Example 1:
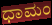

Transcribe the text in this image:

ಧಾಮಂ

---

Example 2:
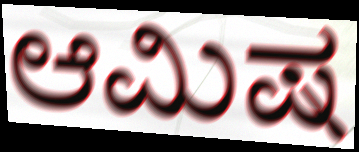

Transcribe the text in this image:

ಆಮಿಷ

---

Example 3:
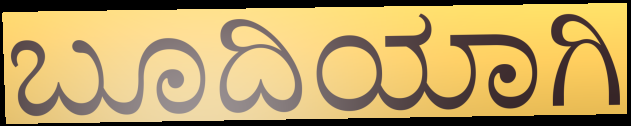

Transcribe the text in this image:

ಬೂದಿಯಾಗಿ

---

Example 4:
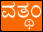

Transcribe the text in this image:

ವತ್ಥಂ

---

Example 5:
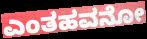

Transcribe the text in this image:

ಎಂತಹವನೋ